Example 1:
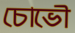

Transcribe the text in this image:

চোভৌ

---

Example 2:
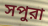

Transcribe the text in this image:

সপুরা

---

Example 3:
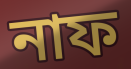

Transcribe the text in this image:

নাফ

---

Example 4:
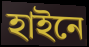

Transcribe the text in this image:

হাইনে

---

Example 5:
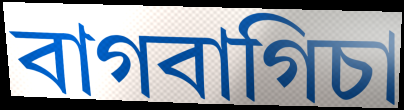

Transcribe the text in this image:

বাগবাগিচা